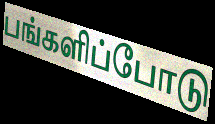
பங்களிப்போடு